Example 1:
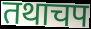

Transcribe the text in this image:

तथाचप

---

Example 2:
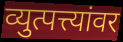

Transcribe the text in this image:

व्युत्पत्त्यांवर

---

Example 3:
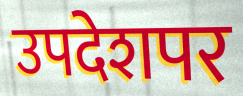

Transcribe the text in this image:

उपदेशपर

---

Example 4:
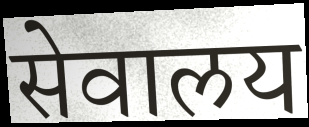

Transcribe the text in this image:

सेवालय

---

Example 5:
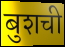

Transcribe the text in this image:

बुशची